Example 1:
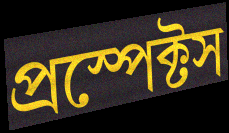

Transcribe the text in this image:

প্রস্পেক্টস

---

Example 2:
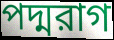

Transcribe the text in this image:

পদ্মরাগ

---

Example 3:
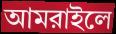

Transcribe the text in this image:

আমরাইলে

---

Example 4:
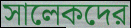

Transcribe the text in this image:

সালেকদের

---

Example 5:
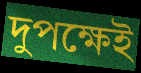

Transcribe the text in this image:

দুপক্ষেই